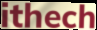
ithech